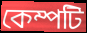
কেম্পটি